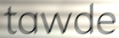
tawde